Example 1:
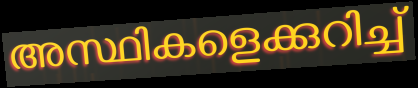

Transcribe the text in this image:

അസ്ഥികളെക്കുറിച്ച്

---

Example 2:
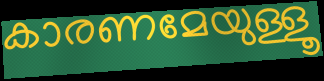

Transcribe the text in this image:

കാരണമേയുള്ളൂ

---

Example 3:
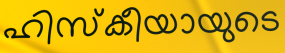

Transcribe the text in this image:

ഹിസ്കീയായുടെ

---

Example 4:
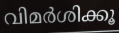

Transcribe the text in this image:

വിമർശിക്കൂ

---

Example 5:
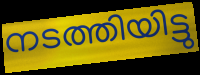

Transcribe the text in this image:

നടത്തിയിട്ടു